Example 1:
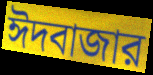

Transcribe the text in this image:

ঈদবাজার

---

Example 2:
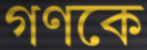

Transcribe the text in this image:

গণকে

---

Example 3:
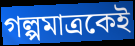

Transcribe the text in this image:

গল্পমাত্রকেই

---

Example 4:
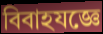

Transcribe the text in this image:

বিবাহযজ্ঞে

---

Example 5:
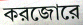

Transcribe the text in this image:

করজোরে